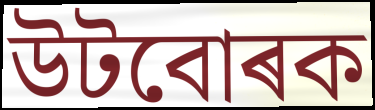
উটবোৰক